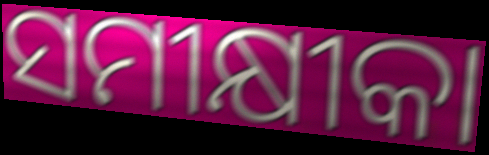
ସମୀକ୍ଷୀକା